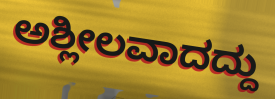
ಅಶ್ಲೀಲವಾದದ್ದು